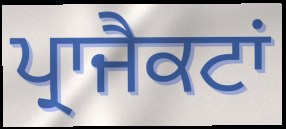
ਪ੍ਰਾਜੈਕਟਾਂ